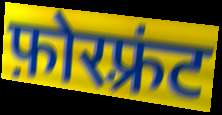
फ़ोरफ़्रंट